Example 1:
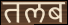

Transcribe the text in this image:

तलब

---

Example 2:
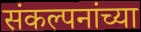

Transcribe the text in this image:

संकल्पनांच्या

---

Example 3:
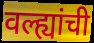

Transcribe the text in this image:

वल्ह्यांची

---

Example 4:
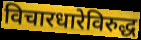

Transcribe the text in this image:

विचारधारेविरुद्ध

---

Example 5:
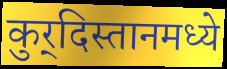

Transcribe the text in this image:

कुर्दिस्तानमध्ये